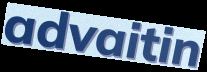
advaitin